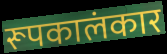
रूपकालंकार